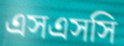
এসএসসি